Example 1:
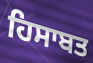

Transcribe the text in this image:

ਹਿਸਾਬਤ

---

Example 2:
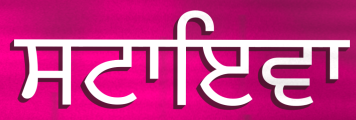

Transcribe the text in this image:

ਸਟਾਇਵਾ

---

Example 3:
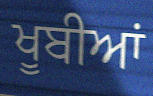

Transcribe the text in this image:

ਖੂਬੀਆਂ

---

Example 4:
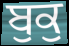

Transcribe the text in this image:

ਬੁਕੁ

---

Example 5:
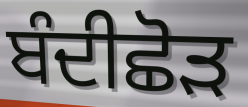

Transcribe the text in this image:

ਬੰਦੀਛੋੜ